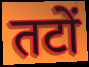
तटों